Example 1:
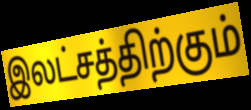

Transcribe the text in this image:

இலட்சத்திற்கும்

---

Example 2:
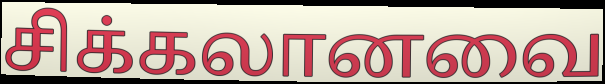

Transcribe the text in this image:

சிக்கலானவை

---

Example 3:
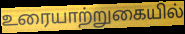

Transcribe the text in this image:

உரையாற்றுகையில்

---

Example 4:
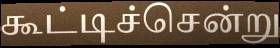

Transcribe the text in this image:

கூட்டிச்சென்று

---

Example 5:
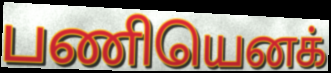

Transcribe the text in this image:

பணியெனக்